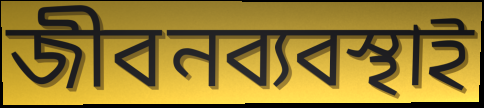
জীবনব্যবস্থাই